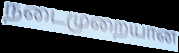
நடைமுறையான